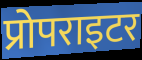
प्रोपराइटर